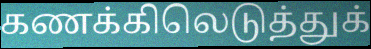
கணக்கிலெடுத்துக்